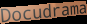
Docudrama